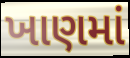
ખાણમાં